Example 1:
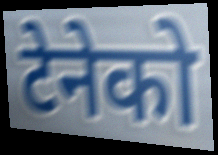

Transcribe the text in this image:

टेनेको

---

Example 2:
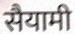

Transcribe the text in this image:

सैयामी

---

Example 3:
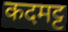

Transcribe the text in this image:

कदमट्ट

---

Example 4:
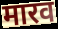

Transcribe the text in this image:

मारव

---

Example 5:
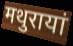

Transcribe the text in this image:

मथुरायां